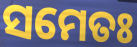
ସମେତଃ